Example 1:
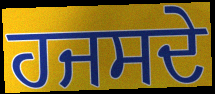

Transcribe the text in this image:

ਹਜਸਦੇ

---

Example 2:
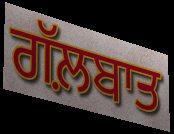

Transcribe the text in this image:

ਗੱਲ਼ਬਾਤ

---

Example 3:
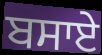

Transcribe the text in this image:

ਬਸਾਏ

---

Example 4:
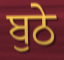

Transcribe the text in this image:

ਬੁਠੇ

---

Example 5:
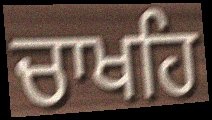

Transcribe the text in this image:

ਚਾਖਹਿ